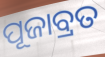
ପୂଜାବ୍ରତ